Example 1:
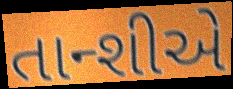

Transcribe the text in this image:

તાન્શીએ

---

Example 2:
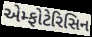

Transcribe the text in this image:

એમ્ફોટેરિસિન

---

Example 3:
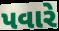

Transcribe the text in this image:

પવારે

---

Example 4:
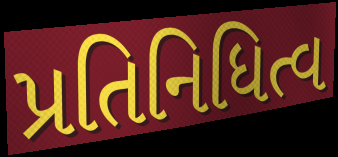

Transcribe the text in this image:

પ્રતિનિધિત્વ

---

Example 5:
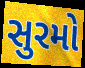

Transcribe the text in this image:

સુરમો